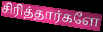
சிரித்தார்களே